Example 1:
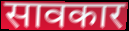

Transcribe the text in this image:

सावकार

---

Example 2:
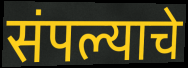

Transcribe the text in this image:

संपल्याचे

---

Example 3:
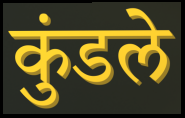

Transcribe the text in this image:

कुंडले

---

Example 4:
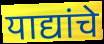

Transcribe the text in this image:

याद्यांचे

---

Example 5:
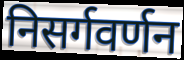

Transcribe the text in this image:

निसर्गवर्णन